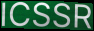
ICSSR